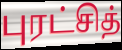
புரட்சித்